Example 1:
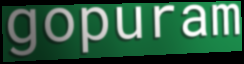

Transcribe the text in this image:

gopuram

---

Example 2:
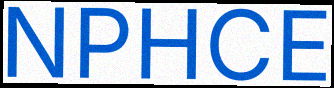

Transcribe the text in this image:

NPHCE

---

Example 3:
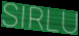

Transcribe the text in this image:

SIRLU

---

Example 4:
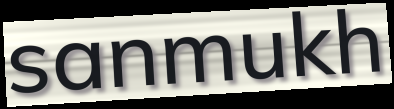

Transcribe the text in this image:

sanmukh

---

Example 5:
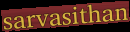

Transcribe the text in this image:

sarvasithan